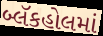
બ્લૅકહોલમાં